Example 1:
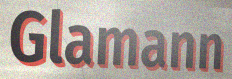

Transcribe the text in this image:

Glamann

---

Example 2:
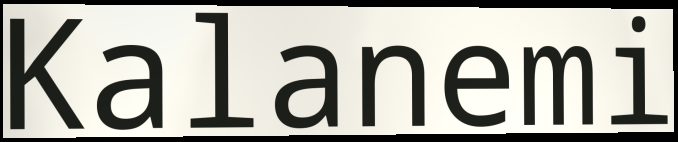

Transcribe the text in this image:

Kalanemi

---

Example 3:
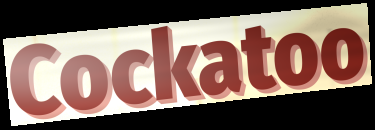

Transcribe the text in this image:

Cockatoo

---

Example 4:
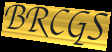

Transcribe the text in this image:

BRCGS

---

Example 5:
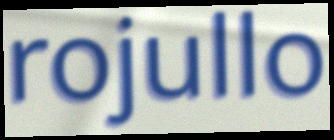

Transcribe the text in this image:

rojullo